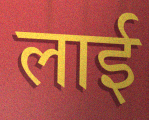
लाई